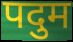
पदुम